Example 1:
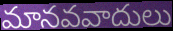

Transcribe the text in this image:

మానవవాదులు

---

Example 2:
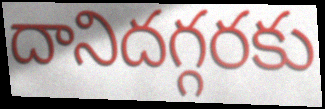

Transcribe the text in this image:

దానిదగ్గరకు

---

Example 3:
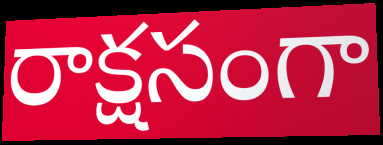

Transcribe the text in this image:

రాక్షసంగా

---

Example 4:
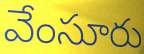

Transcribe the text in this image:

వేంసూరు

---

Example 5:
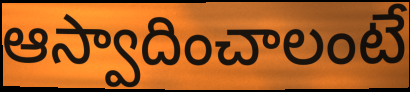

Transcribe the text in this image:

ఆస్వాదించాలంటే